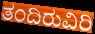
ತಂದಿರುವಿರಿ